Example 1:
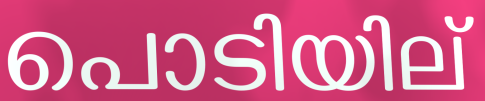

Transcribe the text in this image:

പൊടിയില്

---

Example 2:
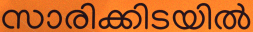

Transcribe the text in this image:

സാരിക്കിടയിൽ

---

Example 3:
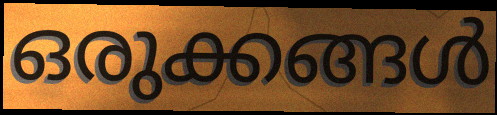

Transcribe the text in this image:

ഒരുക്കങ്ങൾ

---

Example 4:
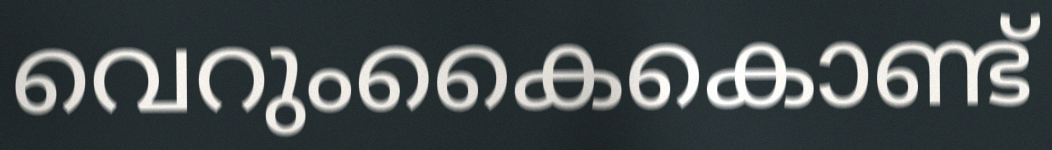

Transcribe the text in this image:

വെറുംകൈകൊണ്ട്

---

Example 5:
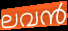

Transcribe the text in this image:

ലവൻ